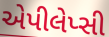
એપીલેપ્સી